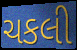
ચકલી